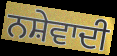
ਨਸ਼ੇਵਾਦੀ